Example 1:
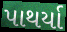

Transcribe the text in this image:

પાથર્યા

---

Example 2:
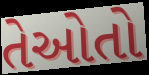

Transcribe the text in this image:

તેઓતો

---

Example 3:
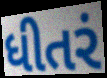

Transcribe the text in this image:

ધીતરં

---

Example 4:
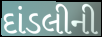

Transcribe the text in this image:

દાંડલીની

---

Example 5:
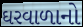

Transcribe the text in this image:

ઘરવાળાનો